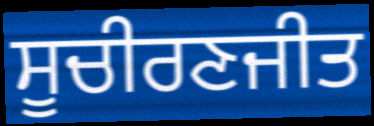
ਸੂਚੀਰਣਜੀਤ